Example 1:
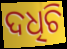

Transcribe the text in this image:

ଦଧିଚି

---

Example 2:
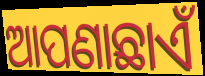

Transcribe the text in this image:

ଆପଣାଛାଏଁ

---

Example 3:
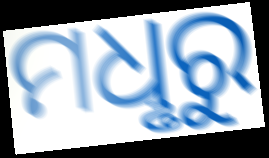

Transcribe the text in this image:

ମଧୢରୁ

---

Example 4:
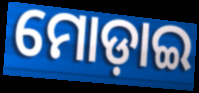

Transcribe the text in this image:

ମୋଡ଼ାଇ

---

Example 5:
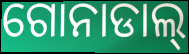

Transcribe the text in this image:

ଗୋନାଡାଲ୍